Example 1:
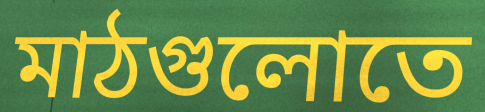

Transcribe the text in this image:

মাঠগুলোতে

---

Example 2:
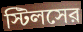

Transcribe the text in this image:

স্টিলসের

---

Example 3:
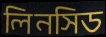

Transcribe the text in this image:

লিনসিড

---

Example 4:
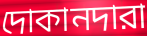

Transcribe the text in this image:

দোকানদারা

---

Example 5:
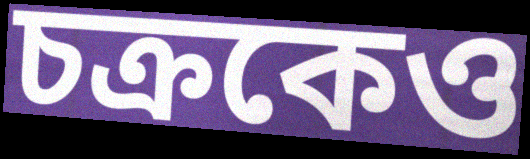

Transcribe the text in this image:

চক্রকেও